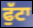
ਫੁੱਟਾ